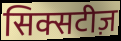
सिक्सटीज़